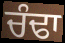
ਚੰਢਾ